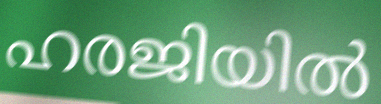
ഹരജിയിൽ